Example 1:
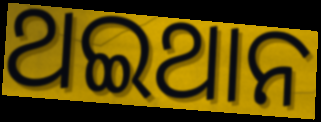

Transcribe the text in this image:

ଥଇଥାନ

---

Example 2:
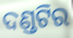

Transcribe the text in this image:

ଦଣ୍ଡଟିର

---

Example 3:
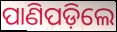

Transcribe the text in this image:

ପାଣିପଡ଼ିଲେ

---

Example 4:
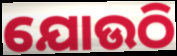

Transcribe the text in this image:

ଯୋଉଠି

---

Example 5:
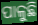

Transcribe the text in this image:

ପାଳୁଛି